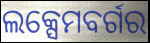
ଲକ୍ସେମବର୍ଗର